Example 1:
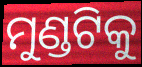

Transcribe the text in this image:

ମୁଣ୍ଡଟିକୁ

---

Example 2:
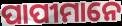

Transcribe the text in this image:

ପାପୀମାନେ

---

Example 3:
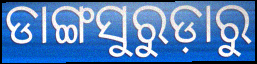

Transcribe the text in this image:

ଡାଙ୍ଗସୁରୁଡ଼ାରୁ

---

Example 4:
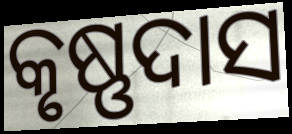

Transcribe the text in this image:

କୃଷ୍ଣଦାସ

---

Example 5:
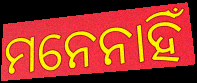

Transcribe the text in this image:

ମନେନାହିଁ